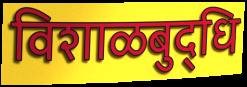
विशाळबुद्धि